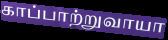
காப்பாற்றுவாயா